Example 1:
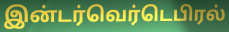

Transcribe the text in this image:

இன்டர்வெர்டெபிரல்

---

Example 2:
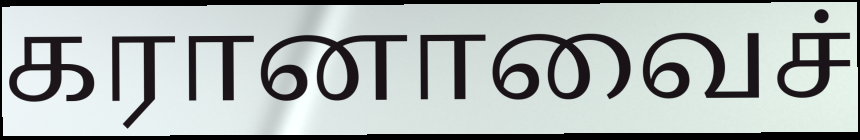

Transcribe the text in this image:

கரானாவைச்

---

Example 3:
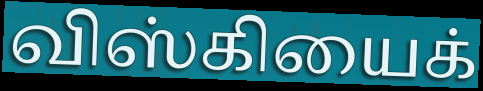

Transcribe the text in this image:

விஸ்கியைக்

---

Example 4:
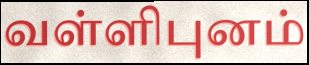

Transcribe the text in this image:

வள்ளிபுனம்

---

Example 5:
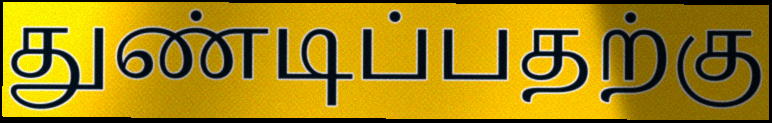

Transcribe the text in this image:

துண்டிப்பதற்கு